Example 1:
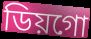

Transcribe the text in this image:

ডিয়গো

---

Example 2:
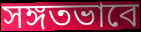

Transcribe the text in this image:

সঙ্গতভাবে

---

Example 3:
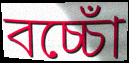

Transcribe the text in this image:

বচ্চোঁ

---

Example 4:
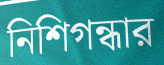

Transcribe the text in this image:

নিশিগন্ধার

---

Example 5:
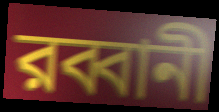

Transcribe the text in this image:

রব্বানী